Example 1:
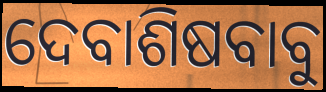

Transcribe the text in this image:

ଦେବାଶିଷବାବୁ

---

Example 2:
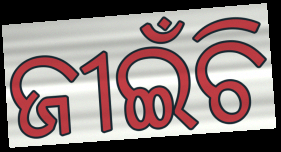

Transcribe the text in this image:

ଜୀଇଁଚି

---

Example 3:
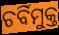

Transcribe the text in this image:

ଚର୍ବିମୁକ୍ତ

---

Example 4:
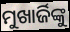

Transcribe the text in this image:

ମୁଖାର୍ଜିଙ୍କୁ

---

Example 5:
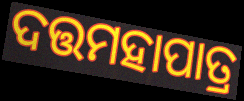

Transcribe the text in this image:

ଦତ୍ତମହାପାତ୍ର